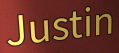
Justin